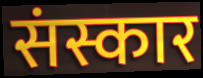
संस्‍कार